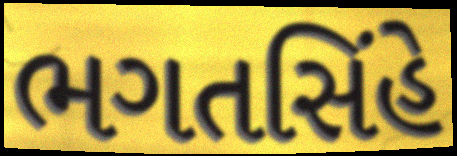
ભગતસિંહે